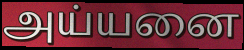
அய்யனை